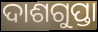
ଦାଶଗୁପ୍ତା